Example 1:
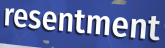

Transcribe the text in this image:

resentment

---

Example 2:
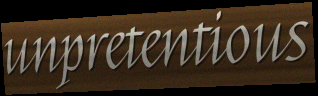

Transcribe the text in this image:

unpretentious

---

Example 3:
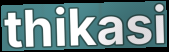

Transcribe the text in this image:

thikasi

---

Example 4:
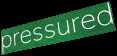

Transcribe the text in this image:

pressured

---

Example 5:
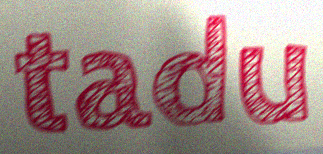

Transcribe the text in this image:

tadu